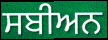
ਸਬੀਅਨ